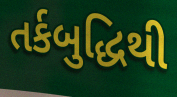
તર્કબુદ્ધિથી